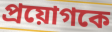
প্রয়োগকে